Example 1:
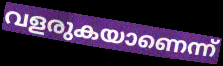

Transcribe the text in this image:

വളരുകയാണെന്ന്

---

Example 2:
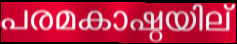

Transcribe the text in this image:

പരമകാഷ്ഠയില്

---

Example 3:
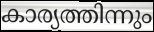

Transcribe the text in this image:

കാര്യത്തിന്നും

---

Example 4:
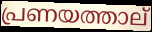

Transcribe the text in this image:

പ്രണയത്താല്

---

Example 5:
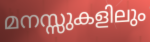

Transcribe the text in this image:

മനസ്സുകളിലും